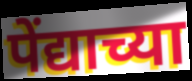
पेंद्याच्या